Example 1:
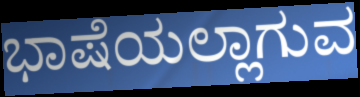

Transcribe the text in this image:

ಭಾಷೆಯಲ್ಲಾಗುವ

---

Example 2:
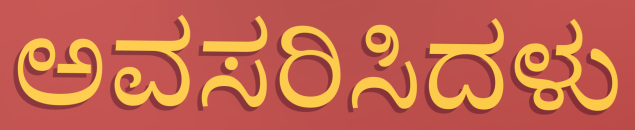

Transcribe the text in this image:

ಅವಸರಿಸಿದಳು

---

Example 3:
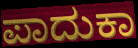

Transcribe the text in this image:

ಪಾದುಕಾ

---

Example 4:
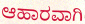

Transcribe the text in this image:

ಆಹಾರವಾಗಿ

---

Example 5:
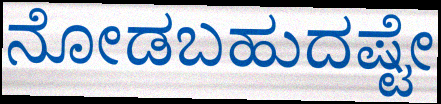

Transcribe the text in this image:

ನೋಡಬಹುದಷ್ಟೇ